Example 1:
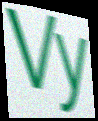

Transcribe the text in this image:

Vy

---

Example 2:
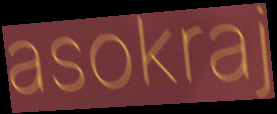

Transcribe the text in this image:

asokraj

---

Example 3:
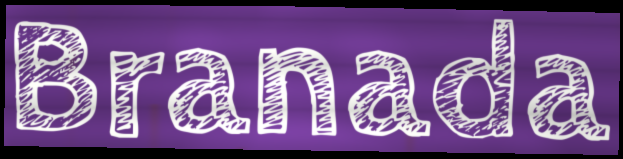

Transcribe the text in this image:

Branada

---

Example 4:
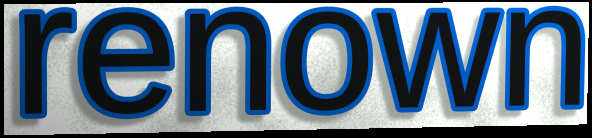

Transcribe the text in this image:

renown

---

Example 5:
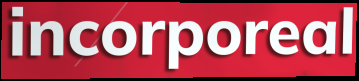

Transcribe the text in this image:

incorporeal